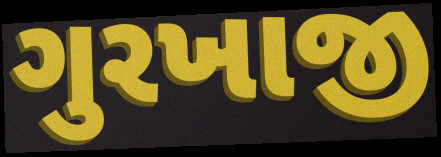
ગુરખાજી